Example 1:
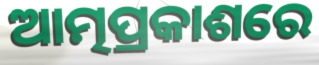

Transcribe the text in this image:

ଆତ୍ମପ୍ରକାଶରେ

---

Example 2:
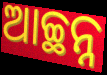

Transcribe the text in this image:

ଆଚ୍ଛନ୍ନ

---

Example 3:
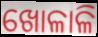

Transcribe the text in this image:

ଖୋଳାଳି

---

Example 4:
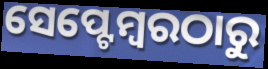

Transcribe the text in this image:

ସେପ୍ଟେମ୍ବରଠାରୁ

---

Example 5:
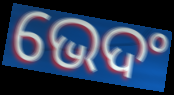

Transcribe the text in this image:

ଭେଦଂ